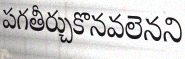
పగతీర్చుకొనవలెనని